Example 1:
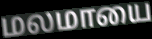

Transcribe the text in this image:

மலமாயை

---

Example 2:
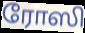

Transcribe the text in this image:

ரோஸி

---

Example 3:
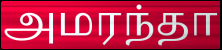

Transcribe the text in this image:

அமரந்தா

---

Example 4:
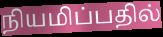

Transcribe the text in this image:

நியமிப்பதில்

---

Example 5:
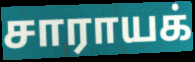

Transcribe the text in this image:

சாராயக்